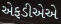
એફડીએએ